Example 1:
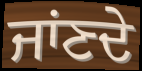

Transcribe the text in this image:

ਜਾਂਣਦੇ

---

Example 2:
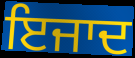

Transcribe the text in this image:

ਇਜਾਦ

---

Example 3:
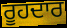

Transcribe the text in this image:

ਰੂਹਦਾਰ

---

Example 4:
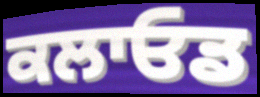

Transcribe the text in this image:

ਕਲਾਓਡ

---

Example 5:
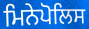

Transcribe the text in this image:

ਮਿਨੇਪੋਲਿਸ